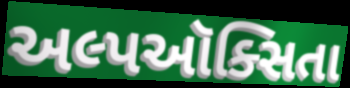
અલ્પઑક્સિતા